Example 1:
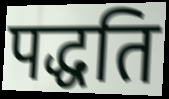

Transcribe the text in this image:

पद्धति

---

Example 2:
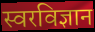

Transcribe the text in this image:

स्वरविज्ञान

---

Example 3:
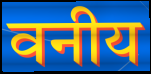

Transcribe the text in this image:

वनीय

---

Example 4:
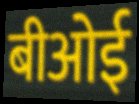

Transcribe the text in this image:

बीओई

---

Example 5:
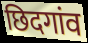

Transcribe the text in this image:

छिदगांव